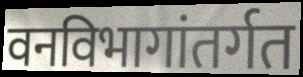
वनविभागांतर्गत